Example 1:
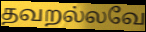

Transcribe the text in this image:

தவறல்லவே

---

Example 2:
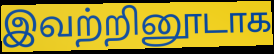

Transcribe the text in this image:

இவற்றினூடாக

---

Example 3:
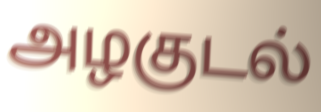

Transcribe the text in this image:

அழகுடல்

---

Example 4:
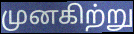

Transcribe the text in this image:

முனகிற்று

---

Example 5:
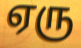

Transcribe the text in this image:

ஏரு